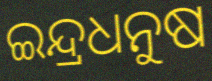
ଇନ୍ଦ୍ରଧନୁଷ